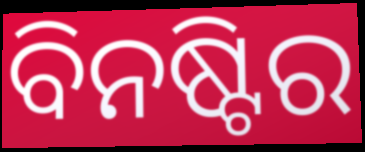
ବିନଷ୍ଟିର